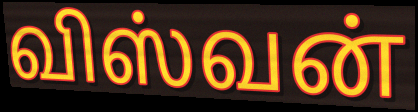
விஸ்வன்